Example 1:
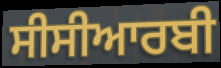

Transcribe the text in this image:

ਸੀਸੀਆਰਬੀ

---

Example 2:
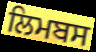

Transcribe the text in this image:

ਲਿਮਬਸ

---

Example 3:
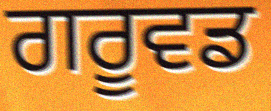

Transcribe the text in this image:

ਗਰੂਵਡ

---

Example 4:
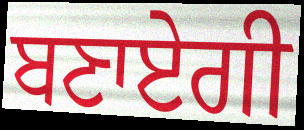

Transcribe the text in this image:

ਬਣਾਏਗੀ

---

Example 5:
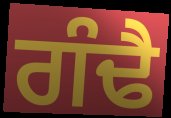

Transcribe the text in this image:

ਗੰਢੈ